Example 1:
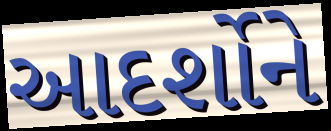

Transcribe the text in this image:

આદર્શોને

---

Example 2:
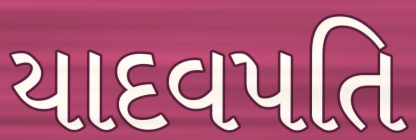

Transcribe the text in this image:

યાદવપતિ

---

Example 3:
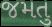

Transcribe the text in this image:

જમતુ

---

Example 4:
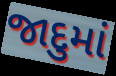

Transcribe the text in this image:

જાદુમાં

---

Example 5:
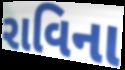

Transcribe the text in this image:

રાવિના